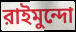
রাইমুন্দো